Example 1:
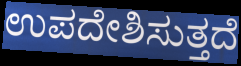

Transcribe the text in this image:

ಉಪದೇಶಿಸುತ್ತದೆ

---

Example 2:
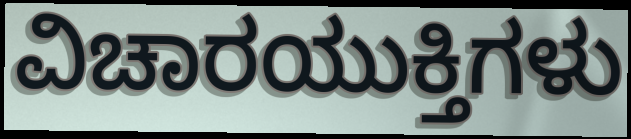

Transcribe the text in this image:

ವಿಚಾರಯುಕ್ತಿಗಳು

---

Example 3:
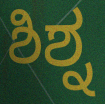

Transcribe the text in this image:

ಶಿಶ್ನ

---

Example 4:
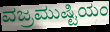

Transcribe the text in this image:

ವಜ್ರಮುಷ್ಟಿಯಂ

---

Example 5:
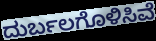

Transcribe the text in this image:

ದುರ್ಬಲಗೊಳಿಸಿವೆ